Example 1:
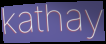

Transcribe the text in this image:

kathay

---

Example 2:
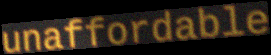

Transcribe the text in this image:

unaffordable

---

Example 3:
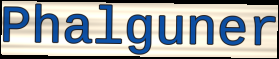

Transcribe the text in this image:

Phalguner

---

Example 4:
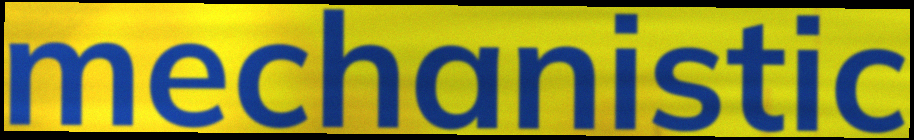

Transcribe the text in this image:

mechanistic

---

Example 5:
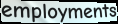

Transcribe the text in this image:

employments